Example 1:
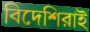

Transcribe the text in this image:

বিদেশিরাই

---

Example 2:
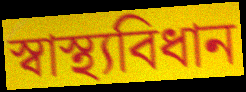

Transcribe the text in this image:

স্বাস্থ্যবিধান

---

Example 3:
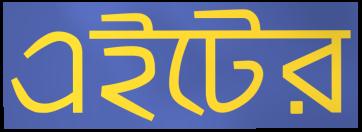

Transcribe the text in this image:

এইটের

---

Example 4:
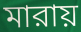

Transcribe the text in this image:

মারায়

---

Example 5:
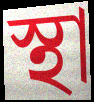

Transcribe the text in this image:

স্থা